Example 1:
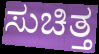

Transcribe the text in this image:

ಸುಚಿತ್ತ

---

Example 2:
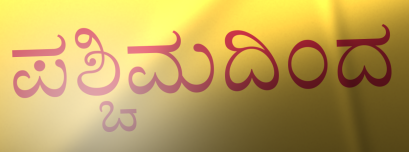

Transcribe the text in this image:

ಪಶ್ಚಿಮದಿಂದ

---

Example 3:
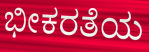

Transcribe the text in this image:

ಭೀಕರತೆಯ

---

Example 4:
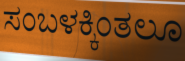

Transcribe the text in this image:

ಸಂಬಳಕ್ಕಿಂತಲೂ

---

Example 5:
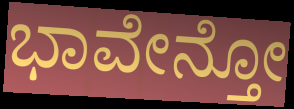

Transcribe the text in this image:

ಭಾವೇನ್ತೋ